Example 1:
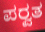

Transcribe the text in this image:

ಪರ್‍ವತ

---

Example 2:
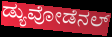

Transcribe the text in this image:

ಡ್ಯುವೋಡೆನಲ್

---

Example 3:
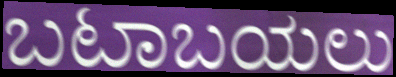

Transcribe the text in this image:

ಬಟಾಬಯಲು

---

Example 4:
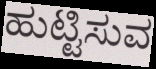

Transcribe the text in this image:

ಹುಟ್ಟಿಸುವ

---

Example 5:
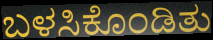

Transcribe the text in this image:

ಬಳಸಿಕೊಂಡಿತು